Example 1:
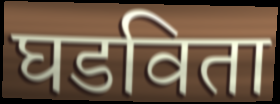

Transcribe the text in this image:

घडविता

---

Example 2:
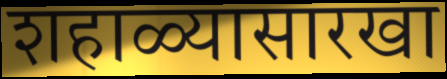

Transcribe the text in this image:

शहाळ्यासारखा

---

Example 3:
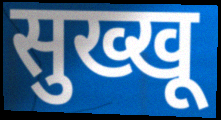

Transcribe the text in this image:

सुख्खू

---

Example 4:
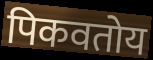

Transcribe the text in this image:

पिकवतोय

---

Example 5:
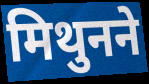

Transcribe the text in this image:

मिथुनने